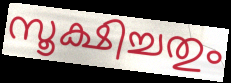
സൂക്ഷിച്ചതും